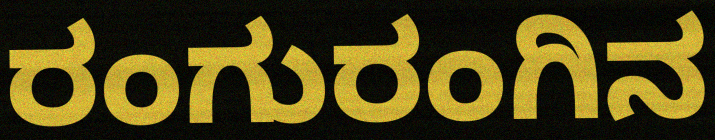
ರಂಗುರಂಗಿನ